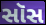
સૉસ